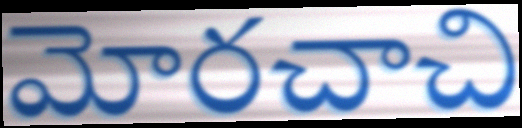
మోరచాచి